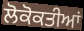
ਲੋਕੋਕਤੀਆਂ